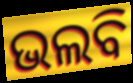
ଭଲବି